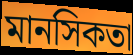
মানসিকতা